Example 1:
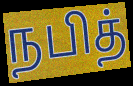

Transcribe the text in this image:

நபித்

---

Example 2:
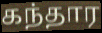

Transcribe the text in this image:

கந்தார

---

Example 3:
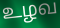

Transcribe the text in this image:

உழவ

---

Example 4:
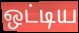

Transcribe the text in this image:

ஒட்டிய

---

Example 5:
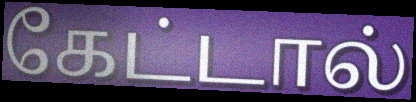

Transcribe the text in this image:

கேட்டால்